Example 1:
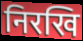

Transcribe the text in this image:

निरखि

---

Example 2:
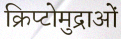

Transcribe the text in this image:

क्रिप्टोमुद्राओं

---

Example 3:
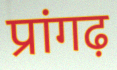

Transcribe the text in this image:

प्रांगढ़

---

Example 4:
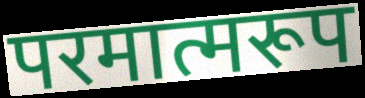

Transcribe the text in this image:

परमात्मरूप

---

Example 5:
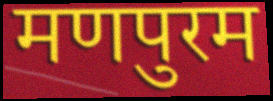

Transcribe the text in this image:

मणपुरम